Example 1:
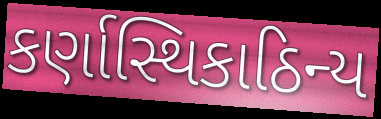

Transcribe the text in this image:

કર્ણાસ્થિકાઠિન્ય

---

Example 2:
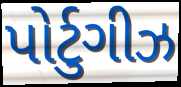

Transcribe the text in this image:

પોર્ટુગીઝ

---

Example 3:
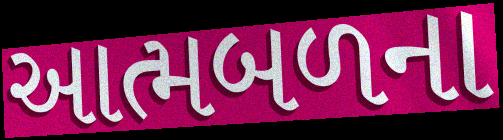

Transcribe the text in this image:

આત્મબળના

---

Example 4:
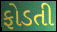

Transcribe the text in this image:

ફોડતી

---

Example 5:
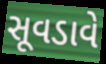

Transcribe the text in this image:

સૂવડાવે